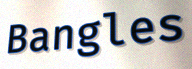
Bangles